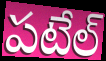
పటేల్